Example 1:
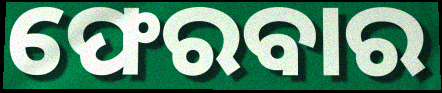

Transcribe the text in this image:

ଫେରବାର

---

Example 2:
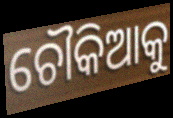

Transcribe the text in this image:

ଚୌକିଆକୁ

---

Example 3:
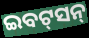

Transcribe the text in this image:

ଇବଟ୍‌ସନ୍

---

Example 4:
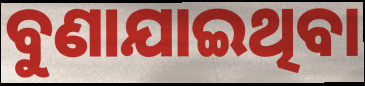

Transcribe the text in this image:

ବୁଣାଯାଇଥିବା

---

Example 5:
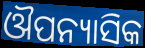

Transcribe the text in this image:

ଔପନ୍ୟାସିକ